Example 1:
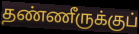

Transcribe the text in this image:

தண்ணீருக்குப்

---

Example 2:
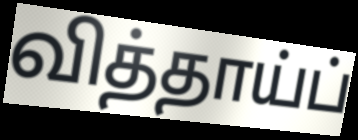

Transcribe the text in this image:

வித்தாய்ப்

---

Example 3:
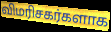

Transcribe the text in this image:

விமரிசகர்களாக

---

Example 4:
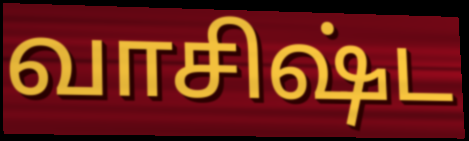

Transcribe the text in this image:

வாசிஷ்ட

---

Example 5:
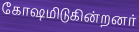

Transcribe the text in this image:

கோஷமிடுகின்றனர்